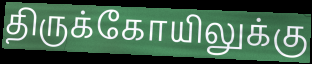
திருக்கோயிலுக்கு